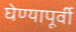
घेण्यापूर्वी